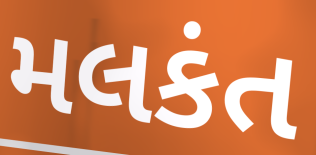
મલકંત